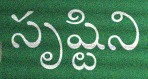
సృష్టిని